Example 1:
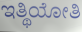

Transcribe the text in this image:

ಇತ್ಥಿಯೋತಿ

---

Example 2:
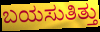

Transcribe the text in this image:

ಬಯಸುತಿತ್ತು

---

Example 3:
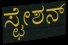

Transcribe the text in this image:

ಸ್ಟೇಶನ್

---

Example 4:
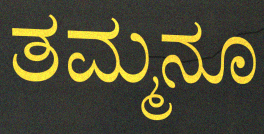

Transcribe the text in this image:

ತಮ್ಮನೂ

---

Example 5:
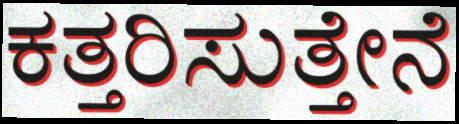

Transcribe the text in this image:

ಕತ್ತರಿಸುತ್ತೇನೆ